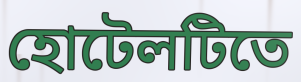
হোটেলটিতে